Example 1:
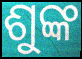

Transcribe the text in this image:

ଶୁଙ୍କ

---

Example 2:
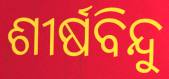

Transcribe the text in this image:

ଶୀର୍ଷବିନ୍ଦୁ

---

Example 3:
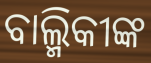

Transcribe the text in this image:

ବାଲ୍ମିକୀଙ୍କ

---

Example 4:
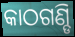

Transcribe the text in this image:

କାଠଗଣ୍ଡି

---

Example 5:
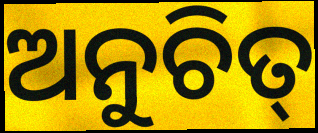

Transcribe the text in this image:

ଅନୁଚିତ୍